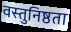
वस्तुनिष्ठता